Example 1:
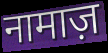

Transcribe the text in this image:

नामाज़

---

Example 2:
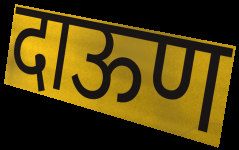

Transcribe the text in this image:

दाऊण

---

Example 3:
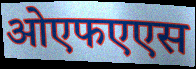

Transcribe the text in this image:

ओएफएएस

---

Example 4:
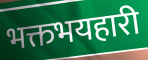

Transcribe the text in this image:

भक्तभयहारी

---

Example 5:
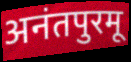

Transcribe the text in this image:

अनंतपुरमू